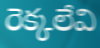
రెక్కలేవి